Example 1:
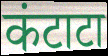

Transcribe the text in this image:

कंटाटा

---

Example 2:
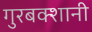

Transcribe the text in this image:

गुरबक्शानी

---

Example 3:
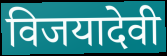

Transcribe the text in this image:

विजयादेवी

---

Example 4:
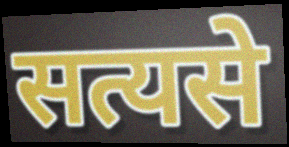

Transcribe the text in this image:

सत्यसे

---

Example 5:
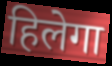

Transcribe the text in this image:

हिलेगा